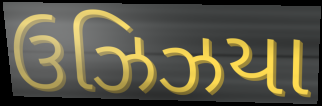
ઉઝિઝયા